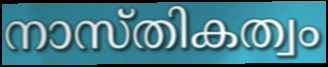
നാസ്തികത്വം